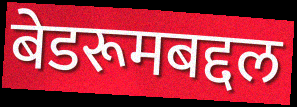
बेडरूमबद्दल